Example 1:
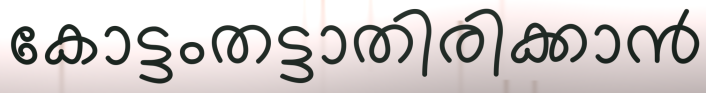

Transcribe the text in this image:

കോട്ടംതട്ടാതിരിക്കാൻ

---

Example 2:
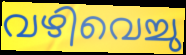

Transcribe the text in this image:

വഴിവെച്ചു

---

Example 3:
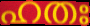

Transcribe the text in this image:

ഹതഃ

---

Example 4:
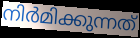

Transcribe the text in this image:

നിർമിക്കുന്നത്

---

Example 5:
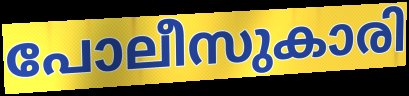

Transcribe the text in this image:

പോലീസുകാരി